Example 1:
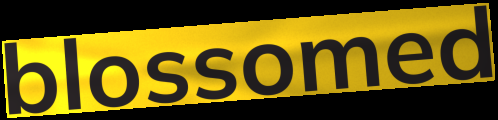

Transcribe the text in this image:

blossomed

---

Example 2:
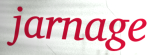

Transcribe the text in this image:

jarnage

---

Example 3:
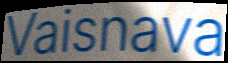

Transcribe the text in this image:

Vaisnava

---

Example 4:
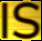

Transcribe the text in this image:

IS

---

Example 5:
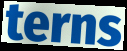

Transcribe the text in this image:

terns